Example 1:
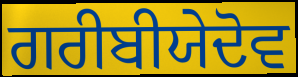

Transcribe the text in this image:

ਗਰੀਬੀਯੇਦੋਵ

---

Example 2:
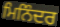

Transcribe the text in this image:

ਮਿਨਿੰਦਰ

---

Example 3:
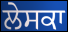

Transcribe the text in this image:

ਲੇਸਕਾ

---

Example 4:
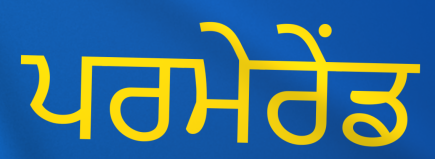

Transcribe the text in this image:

ਪਰਮੇਰੇਂਡ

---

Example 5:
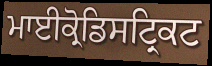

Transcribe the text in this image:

ਮਾਈਕ੍ਰੋਡਿਸਟ੍ਰਿਕਟ